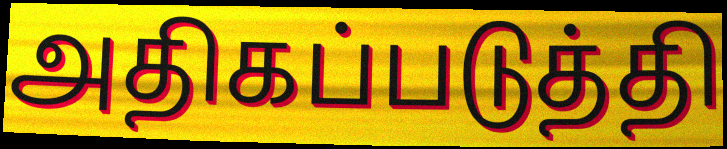
அதிகப்படுத்தி